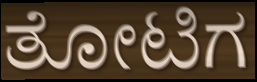
ತೋಟಿಗ